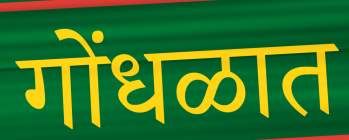
गोंधळात